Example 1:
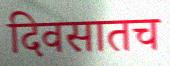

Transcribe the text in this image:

दिवसातच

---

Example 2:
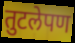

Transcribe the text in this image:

तुटलेपण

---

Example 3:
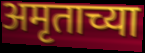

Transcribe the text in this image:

अमृताच्या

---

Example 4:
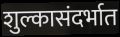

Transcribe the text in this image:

शुल्कासंदर्भात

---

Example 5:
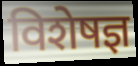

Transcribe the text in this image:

विशेषज्ञ